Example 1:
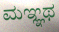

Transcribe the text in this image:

ಮಞ್ಞಥ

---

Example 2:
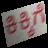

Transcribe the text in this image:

ಕಿಕ್ಕಿಗೆ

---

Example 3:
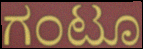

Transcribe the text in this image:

ಗಂಟೂ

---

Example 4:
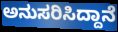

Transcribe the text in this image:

ಅನುಸರಿಸಿದ್ದಾನೆ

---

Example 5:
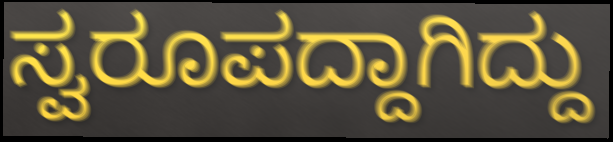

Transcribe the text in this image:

ಸ್ವರೂಪದ್ದಾಗಿದ್ದು